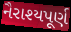
નૈરાશ્યપૂર્ણ